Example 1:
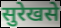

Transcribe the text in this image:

सुरेखसे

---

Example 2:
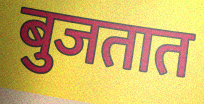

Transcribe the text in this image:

बुजतात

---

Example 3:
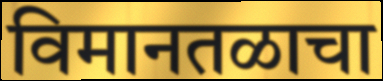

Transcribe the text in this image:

विमानतळाचा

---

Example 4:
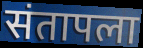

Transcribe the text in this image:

संतापला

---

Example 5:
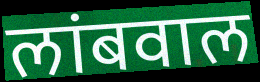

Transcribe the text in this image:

लांबवाल